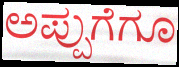
ಅಪ್ಪುಗೆಗೂ